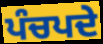
ਪੰਚਪਦੇ